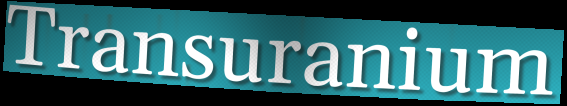
Transuranium